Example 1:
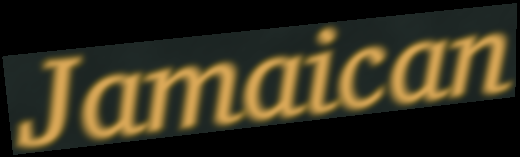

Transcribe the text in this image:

Jamaican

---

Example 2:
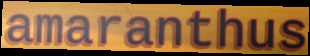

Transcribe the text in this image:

amaranthus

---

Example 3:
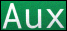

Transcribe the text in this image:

Aux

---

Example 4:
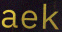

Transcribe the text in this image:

aek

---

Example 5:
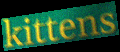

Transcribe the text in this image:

kittens